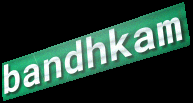
bandhkam